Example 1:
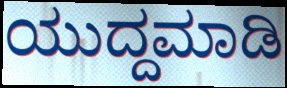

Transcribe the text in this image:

ಯುದ್ದಮಾಡಿ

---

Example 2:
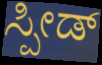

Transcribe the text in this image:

ಸ್ಪೀಡ್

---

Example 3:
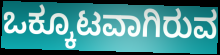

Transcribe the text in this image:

ಒಕ್ಕೂಟವಾಗಿರುವ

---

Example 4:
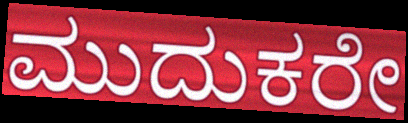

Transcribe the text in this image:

ಮುದುಕರೇ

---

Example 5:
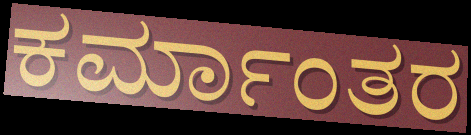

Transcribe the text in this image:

ಕರ್ಮಾಂತರ